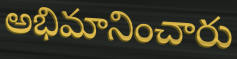
అభిమానించారు